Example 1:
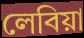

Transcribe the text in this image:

লেবিয়া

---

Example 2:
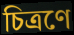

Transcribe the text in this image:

চিত্ৰণে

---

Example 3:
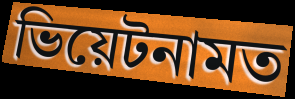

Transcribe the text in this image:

ভিয়েটনামত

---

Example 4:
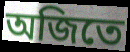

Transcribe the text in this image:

অজিতে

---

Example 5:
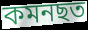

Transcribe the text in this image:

কমনছত